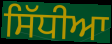
ਸਿੱਧੀਆ